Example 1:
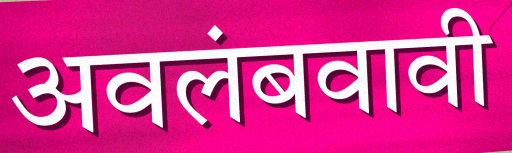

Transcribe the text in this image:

अवलंबवावी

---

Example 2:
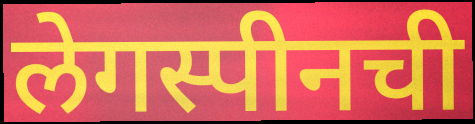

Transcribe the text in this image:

लेगस्पीनची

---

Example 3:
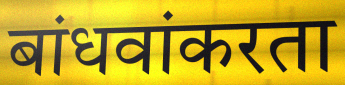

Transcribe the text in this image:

बांधवांकरता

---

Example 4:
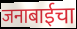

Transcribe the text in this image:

जनाबाईचा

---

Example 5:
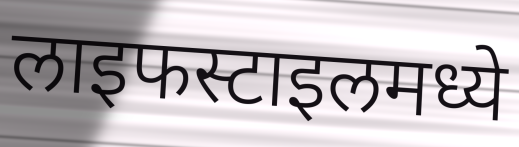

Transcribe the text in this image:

लाइफस्टाइलमध्ये